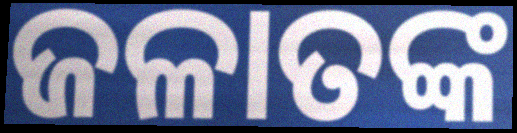
ଜଳାତଙ୍କ